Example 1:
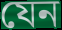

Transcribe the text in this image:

যেন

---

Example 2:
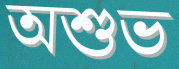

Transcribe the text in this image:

অশুভ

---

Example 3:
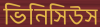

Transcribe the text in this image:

ভিনিসিউস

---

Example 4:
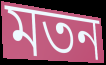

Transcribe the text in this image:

মতন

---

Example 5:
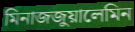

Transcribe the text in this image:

মিনাজজুয়ালেমিন